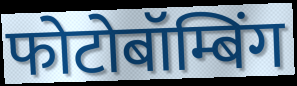
फोटोबॉम्बिंग